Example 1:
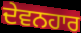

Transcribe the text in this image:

ਦੇਵਨਹਾਰ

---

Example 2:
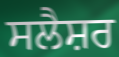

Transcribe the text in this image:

ਸਲੈਸ਼ਰ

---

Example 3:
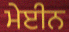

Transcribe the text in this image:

ਮੇਈਨ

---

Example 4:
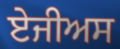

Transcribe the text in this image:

ਏਜੀਅਸ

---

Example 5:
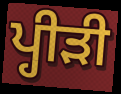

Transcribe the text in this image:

ਪ੍ਹੀੜੀ